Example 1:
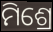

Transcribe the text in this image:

ମିଶ୍ରେ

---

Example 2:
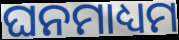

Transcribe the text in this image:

ଘନମାଧ୍ୟମ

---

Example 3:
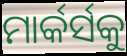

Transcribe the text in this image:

ମାର୍କର୍ସକୁ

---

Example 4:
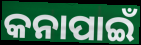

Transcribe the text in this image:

କନାପାଇଁ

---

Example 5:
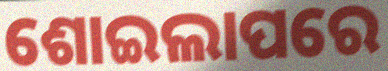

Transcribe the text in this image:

ଶୋଇଲାପରେ